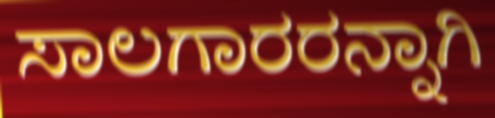
ಸಾಲಗಾರರನ್ನಾಗಿ